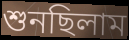
শুনছিলাম